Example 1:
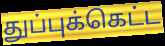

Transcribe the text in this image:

துப்புக்கெட்ட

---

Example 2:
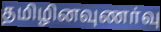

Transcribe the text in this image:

தமிழினவுணர்வு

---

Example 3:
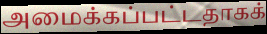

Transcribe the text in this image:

அமைக்கப்பட்டதாகக்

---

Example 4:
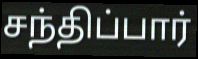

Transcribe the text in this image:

சந்திப்பார்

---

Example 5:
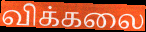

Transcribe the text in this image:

விக்கலை